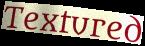
Textured